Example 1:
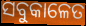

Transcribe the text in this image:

ସବୁକାଳେତ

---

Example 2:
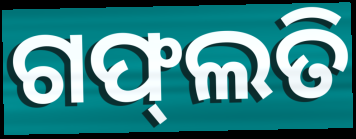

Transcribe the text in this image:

ଗଫ୍‌ଲତି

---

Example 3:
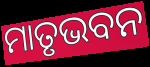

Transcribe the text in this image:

ମାତୃଭବନ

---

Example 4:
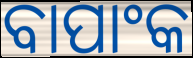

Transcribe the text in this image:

ବାପାଂକ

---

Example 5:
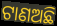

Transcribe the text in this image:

ଟାଣଅଛି